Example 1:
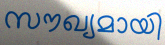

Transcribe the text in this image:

സൗഖ്യമായി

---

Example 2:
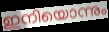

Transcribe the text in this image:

ഇനിയൊന്നും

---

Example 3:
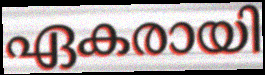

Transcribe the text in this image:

ഏകരായി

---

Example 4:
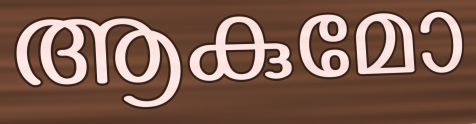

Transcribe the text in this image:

ആകുമോ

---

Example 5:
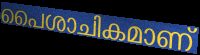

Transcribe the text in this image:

പൈശാചികമാണ്